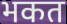
भकत